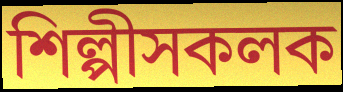
শিল্পীসকলক